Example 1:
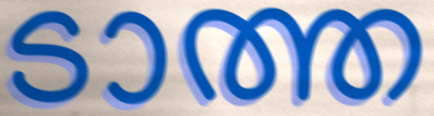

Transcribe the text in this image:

ടാത്ത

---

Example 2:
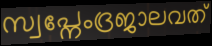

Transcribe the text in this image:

സ്വപ്നേംദ്രജാലവത്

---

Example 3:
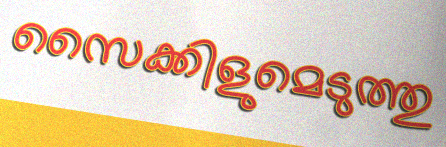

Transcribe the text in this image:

സൈക്കിളുമെടുത്തു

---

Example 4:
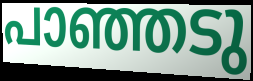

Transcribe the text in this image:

പാഞ്ഞടു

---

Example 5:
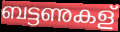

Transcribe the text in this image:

ബട്ടണുകള്